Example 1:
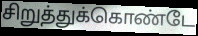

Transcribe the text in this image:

சிறுத்துக்கொண்டே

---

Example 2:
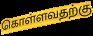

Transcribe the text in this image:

கொள்ளவதற்கு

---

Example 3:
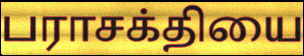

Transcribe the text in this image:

பராசக்தியை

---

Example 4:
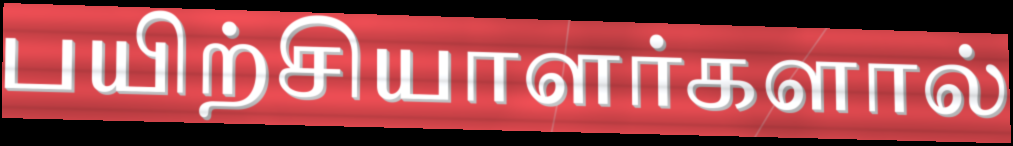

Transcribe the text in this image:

பயிற்சியாளர்களால்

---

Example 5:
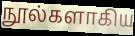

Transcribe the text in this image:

நூல்களாகிய